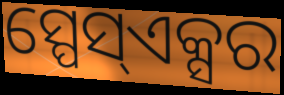
ସ୍ପେସ୍ଏକ୍ସର